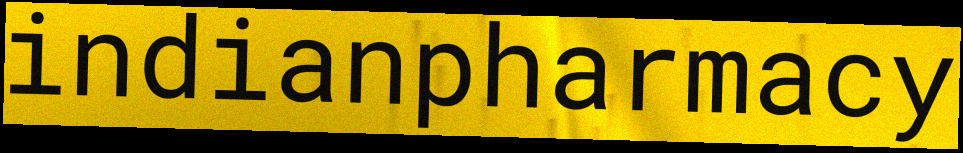
indianpharmacy